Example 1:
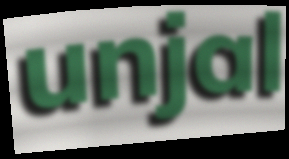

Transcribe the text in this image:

unjal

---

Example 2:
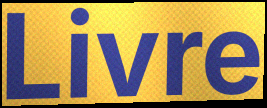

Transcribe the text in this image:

Livre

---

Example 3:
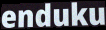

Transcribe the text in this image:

enduku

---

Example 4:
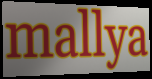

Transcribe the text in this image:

mallya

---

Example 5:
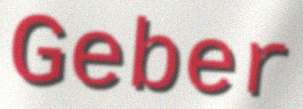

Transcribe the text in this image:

Geber